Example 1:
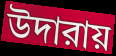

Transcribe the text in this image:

উদারায়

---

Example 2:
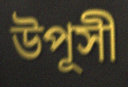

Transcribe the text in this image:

উপূসী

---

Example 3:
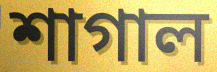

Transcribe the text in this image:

শাগাল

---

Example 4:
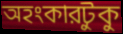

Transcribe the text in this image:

অহংকারটুকু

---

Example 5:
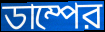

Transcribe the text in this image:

ডাম্পের